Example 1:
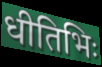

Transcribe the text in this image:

धीतिभिः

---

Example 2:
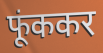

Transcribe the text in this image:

फूंककर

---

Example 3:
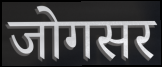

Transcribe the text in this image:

जोगसर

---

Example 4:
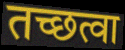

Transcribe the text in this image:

तच्छत्वा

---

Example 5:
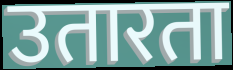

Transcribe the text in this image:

उतारता